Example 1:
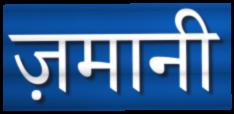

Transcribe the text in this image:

ज़मानी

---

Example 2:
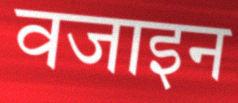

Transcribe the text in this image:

वजाइन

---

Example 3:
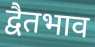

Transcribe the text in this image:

द्वैतभाव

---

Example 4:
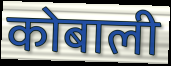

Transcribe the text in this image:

कोबाली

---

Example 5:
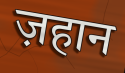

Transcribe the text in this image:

ज़हान